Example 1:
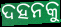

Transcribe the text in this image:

ଦହନକୁ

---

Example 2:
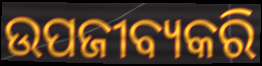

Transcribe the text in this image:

ଉପଜୀବ୍ୟକରି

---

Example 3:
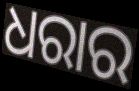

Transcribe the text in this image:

ଧରାର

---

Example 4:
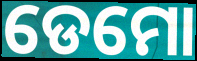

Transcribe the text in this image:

ଡେମୋ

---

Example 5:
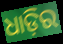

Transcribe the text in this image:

ଧାଡ଼ିର